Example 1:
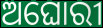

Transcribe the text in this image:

ଅଘୋରୀ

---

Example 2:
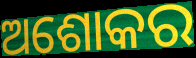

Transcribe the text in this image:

ଅଶୋକର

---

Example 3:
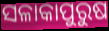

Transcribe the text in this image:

ସଳାକାପୁରୁଷ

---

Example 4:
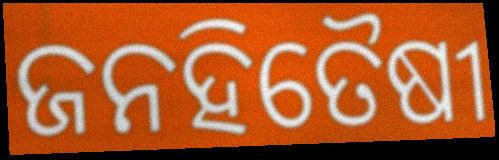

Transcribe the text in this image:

ଜନହିତୈଷୀ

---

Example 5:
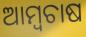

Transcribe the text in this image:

ଆମ୍ୱଚାଷ